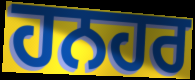
ਹਨਹਰ